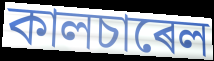
কালচাৰেল